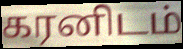
கரனிடம்